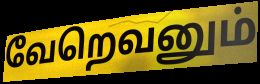
வேறெவனும்